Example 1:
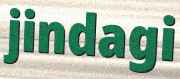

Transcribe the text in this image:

jindagi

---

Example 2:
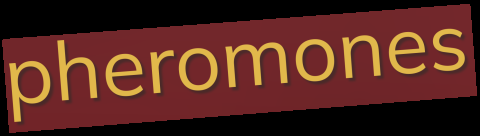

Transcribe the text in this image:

pheromones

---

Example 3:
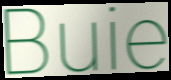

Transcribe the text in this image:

Buie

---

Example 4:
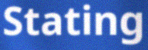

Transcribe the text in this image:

Stating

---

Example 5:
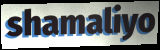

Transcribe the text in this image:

shamaliyo